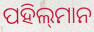
ପହିଲ୍‌ମାନ